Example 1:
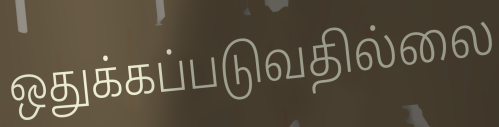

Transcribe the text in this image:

ஒதுக்கப்படுவதில்லை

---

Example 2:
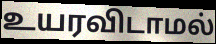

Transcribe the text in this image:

உயரவிடாமல்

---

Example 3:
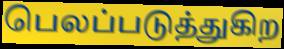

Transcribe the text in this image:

பெலப்படுத்துகிற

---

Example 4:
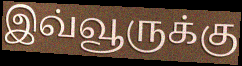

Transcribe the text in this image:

இவ்வூருக்கு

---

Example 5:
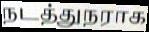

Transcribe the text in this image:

நடத்துநராக